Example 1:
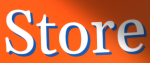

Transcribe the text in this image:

Store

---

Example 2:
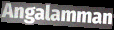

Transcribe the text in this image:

Angalamman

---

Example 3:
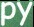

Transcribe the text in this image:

py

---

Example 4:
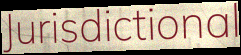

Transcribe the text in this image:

Jurisdictional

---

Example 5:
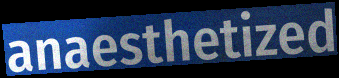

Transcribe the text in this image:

anaesthetized